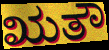
ಋತೌ